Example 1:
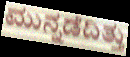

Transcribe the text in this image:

ಮುನ್ನಡೆದಿತ್ತು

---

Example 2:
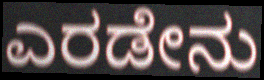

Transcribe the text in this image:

ಎರಡೇನು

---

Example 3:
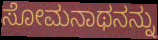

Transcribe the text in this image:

ಸೋಮನಾಥನನ್ನು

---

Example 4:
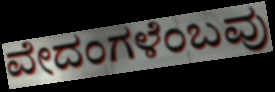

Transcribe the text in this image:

ವೇದಂಗಳೆಂಬವು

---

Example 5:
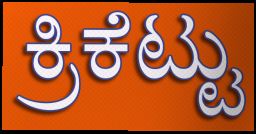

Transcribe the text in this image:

ಕ್ರಿಕೆಟ್ಟು